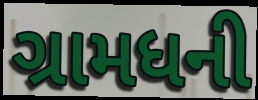
ગ્રામધની